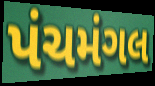
પંચમંગલ